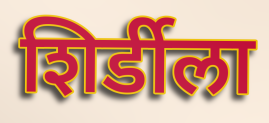
शिर्डीला